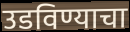
उडविण्याचा